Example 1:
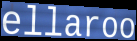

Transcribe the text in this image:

ellaroo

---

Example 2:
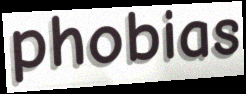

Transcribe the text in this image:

phobias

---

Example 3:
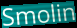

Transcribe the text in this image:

Smolin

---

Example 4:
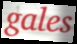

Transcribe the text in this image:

gales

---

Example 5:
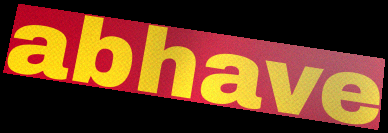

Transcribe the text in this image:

abhave